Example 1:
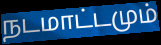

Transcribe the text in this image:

நடமாட்டமும்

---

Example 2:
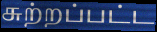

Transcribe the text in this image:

சுற்றப்பட்ட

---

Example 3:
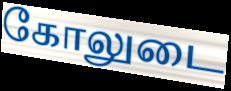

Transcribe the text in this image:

கோலுடை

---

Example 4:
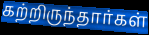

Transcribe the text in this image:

கற்றிருந்தார்கள்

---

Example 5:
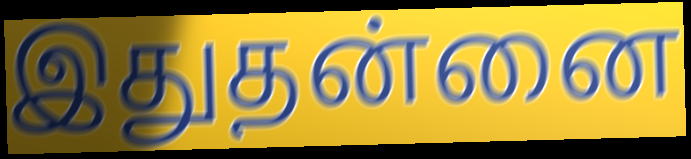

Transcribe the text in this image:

இதுதன்னை